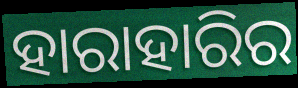
ହାରାହାରିର